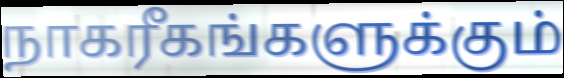
நாகரீகங்களுக்கும்